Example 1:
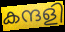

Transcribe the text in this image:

കന്ദളി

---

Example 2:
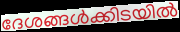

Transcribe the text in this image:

ദേശങ്ങൾക്കിടയിൽ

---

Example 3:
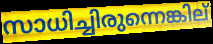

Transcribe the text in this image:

സാധിച്ചിരുന്നെങ്കില്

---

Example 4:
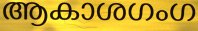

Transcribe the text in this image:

ആകാശഗംഗ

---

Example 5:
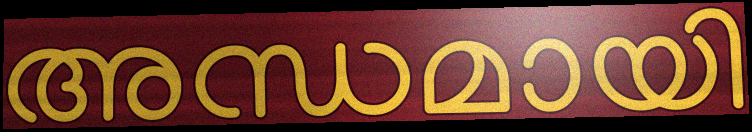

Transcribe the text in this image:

അന്ധമായി